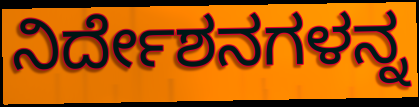
ನಿರ್ದೇಶನಗಳನ್ನ